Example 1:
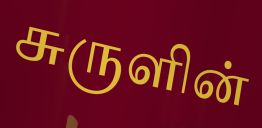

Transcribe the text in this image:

சுருளின்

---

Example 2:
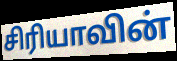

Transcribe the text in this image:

சிரியாவின்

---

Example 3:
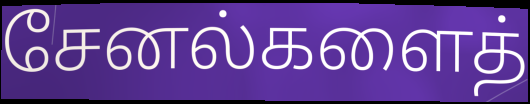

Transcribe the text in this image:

சேனல்களைத்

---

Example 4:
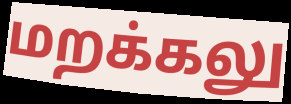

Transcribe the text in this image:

மறக்கலு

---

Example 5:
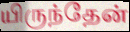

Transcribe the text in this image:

யிருந்தேன்